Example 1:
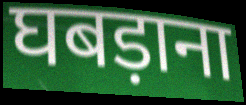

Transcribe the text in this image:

घबड़ाना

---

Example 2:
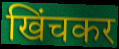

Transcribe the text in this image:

खिंचकर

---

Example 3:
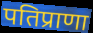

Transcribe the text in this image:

पतिप्राणा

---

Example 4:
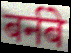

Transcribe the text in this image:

बर्नबे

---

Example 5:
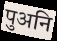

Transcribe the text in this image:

पुअनि